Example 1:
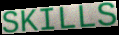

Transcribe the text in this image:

SKILLS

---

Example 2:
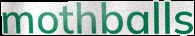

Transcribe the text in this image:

mothballs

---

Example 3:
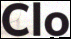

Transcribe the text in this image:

Clo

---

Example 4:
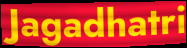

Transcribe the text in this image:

Jagadhatri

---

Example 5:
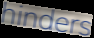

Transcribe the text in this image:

hinders